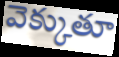
వెక్కుతూ